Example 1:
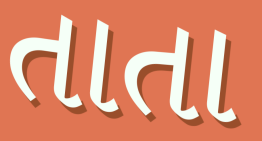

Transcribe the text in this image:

તાતા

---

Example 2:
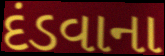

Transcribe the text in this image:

દંડવાના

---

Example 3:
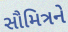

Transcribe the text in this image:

સૌમિત્રને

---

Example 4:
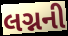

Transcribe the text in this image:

લગ્નની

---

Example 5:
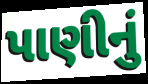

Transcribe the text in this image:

પાણીનું